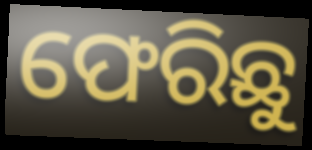
ଫେରିଛୁ